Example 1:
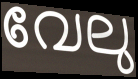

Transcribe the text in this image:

വേലു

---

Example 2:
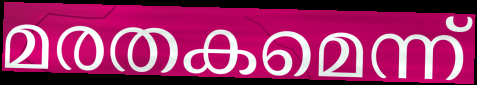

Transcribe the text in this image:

മരതകമെന്ന്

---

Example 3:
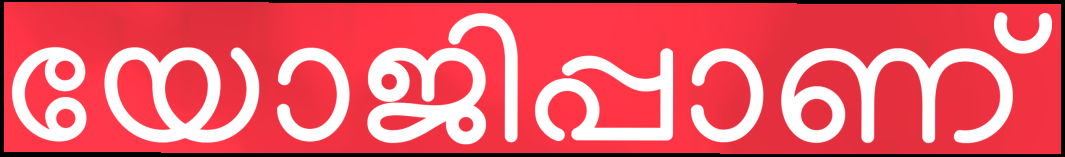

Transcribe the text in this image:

യോജിപ്പാണ്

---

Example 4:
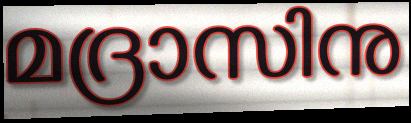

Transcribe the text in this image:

മദ്രാസിനു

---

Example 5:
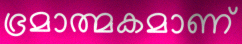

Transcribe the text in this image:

ഭ്രമാത്മകമാണ്